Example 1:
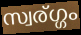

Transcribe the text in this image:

സ്വര്ഗ്ഗം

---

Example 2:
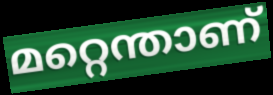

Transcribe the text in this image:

മറ്റെന്താണ്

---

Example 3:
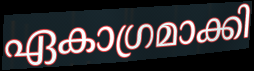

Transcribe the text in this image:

ഏകാഗ്രമാക്കി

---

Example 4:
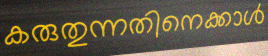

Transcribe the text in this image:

കരുതുന്നതിനെക്കാൾ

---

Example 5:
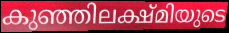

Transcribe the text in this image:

കുഞ്ഞിലക്ഷ്മിയുടെ